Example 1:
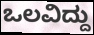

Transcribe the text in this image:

ಒಲವಿದ್ದು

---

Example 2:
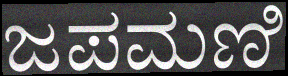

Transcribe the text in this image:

ಜಪಮಣಿ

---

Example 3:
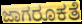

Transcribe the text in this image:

ಜಾಗರೂಕತೆ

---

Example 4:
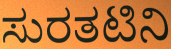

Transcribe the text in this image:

ಸುರತಟಿನಿ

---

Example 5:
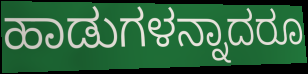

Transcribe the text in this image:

ಹಾಡುಗಳನ್ನಾದರೂ